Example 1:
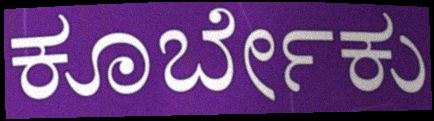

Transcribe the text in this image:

ಕೂರ್ಬೇಕು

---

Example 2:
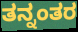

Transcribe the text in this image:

ತನ್ನಂತರ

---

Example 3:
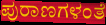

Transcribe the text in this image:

ಪುರಾಣಗಳಂತೆ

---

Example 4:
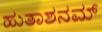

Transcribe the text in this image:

ಹುತಾಶನಮ್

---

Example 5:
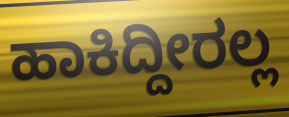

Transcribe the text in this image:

ಹಾಕಿದ್ದೀರಲ್ಲ